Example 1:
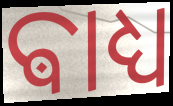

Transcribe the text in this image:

ଵାଧ୍ୟ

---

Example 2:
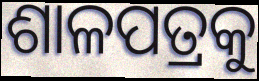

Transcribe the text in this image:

ଶାଳପତ୍ରକୁ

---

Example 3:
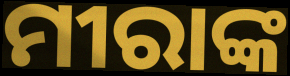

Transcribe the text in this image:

ମୀରାଙ୍କ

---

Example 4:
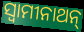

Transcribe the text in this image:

ସ୍ୱାମୀନାଥନ୍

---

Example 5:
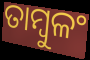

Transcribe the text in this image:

ତାମ୍ବୁଳଂ